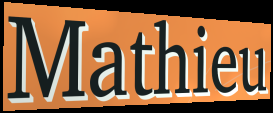
Mathieu